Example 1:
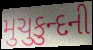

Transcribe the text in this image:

મુચુકુન્દની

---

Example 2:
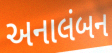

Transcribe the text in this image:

અનાલંબન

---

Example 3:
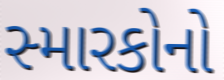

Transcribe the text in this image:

સ્મારકોનો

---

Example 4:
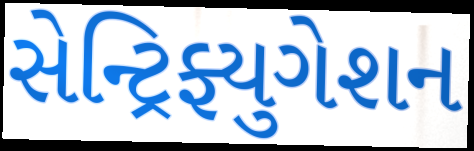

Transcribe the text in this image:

સેન્ટ્રિફ્યુગેશન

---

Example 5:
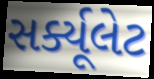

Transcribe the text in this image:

સર્ક્યૂલેટ